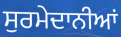
ਸੁਰਮੇਦਾਨੀਆਂ